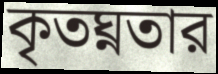
কৃতঘ্নতার